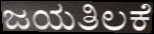
ಜಯತಿಲಕೆ